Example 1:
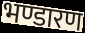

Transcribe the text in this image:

भण्डारण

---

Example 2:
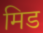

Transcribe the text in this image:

मिड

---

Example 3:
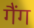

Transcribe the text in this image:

गैंग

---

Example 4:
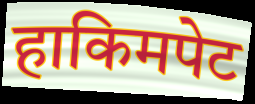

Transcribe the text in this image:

हाकिमपेट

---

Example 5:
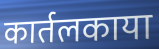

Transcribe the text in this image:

कार्तलकाया